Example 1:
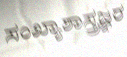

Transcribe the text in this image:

ಸಂಖ್ಯಾಶಾಸ್ತ್ರಜ್ಞರ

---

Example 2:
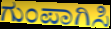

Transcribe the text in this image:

ಗುಂಪಾಗಿಸಿ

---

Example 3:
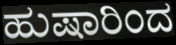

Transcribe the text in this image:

ಹುಷಾರಿಂದ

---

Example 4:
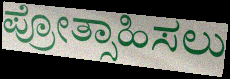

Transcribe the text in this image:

ಪ್ರೋತ್ಸಾಹಿಸಲು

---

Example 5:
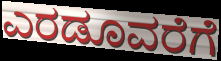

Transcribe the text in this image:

ಎರಡೂವರೆಗೆ